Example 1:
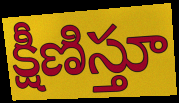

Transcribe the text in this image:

క్షీణిస్తూ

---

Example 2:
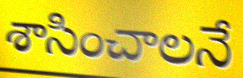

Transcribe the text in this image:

శాసించాలనే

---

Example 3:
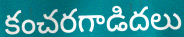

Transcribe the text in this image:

కంచరగాడిదలు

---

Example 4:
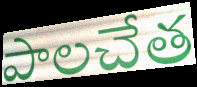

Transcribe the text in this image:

పాలచేత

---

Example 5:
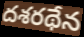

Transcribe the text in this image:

దశరథేన